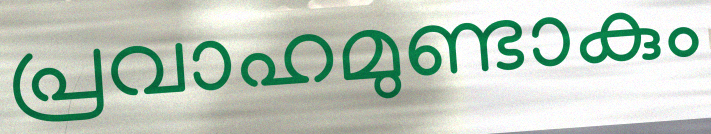
പ്രവാഹമുണ്ടാകും